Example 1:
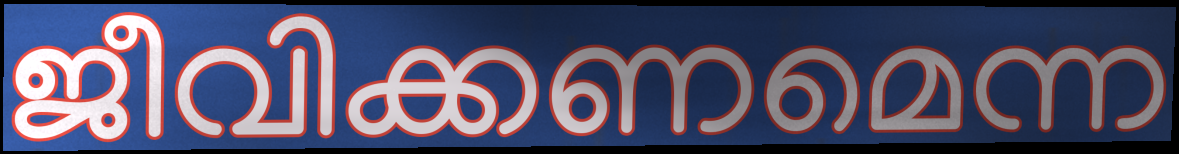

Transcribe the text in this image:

ജീവിക്കണമെന്ന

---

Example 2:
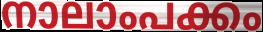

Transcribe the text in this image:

നാലാംപക്കം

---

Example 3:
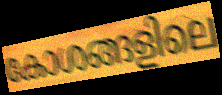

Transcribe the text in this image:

കോശങ്ങളിലെ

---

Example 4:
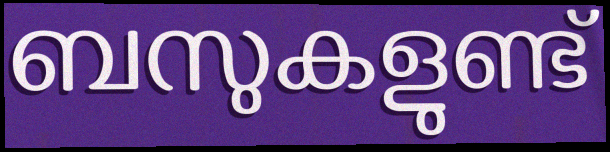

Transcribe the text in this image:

ബസുകളുണ്ട്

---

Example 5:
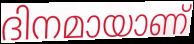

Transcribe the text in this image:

ദിനമായാണ്